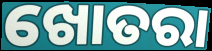
ଖୋତରା